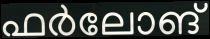
ഫർലോങ്